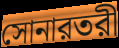
সোনারতরী